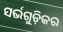
ସର୍ଭଗୁଡ଼ିକର